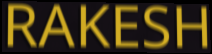
RAKESH